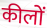
कीलों